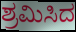
ಶ್ರಮಿಸಿದ